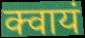
क्वायं